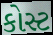
કોસ્ટ